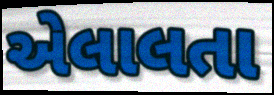
એલાલતા